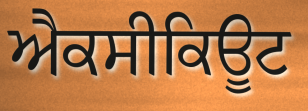
ਐਕਸੀਕਿਊਟ